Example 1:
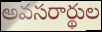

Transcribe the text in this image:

అవసరార్థుల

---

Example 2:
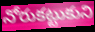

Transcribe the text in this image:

నోరుకట్టుకుని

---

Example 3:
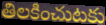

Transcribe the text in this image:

తిలకించుటకు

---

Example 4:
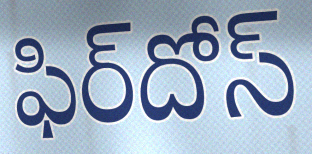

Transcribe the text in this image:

ఫిర్‌దోస్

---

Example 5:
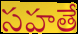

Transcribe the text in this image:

సహతే